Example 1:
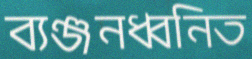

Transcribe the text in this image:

ব্যঞ্জনধ্বনিত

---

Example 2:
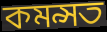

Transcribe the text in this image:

কমন্সত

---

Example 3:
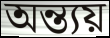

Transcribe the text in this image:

অন্ত্যয়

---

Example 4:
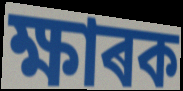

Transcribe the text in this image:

ক্ষাৰক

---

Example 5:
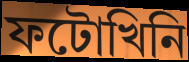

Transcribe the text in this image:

ফটোখিনি